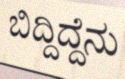
ಬಿದ್ದಿದ್ದೆನು